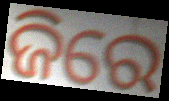
ଜିରେ